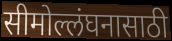
सीमोल्लंघनासाठी